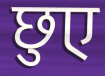
छुए